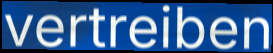
vertreiben